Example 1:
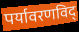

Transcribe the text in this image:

पर्यावरणविद्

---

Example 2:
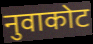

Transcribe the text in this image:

नुवाकोट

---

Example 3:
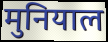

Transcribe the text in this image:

मुनियाल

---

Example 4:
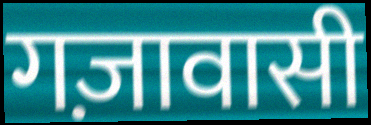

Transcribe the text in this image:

गज़ावासी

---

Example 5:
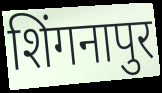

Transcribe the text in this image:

शिंगनापुर